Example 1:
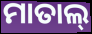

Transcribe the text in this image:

ମାତାଲ୍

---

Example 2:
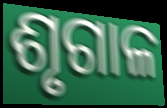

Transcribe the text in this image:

ଶୃଗାଳ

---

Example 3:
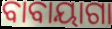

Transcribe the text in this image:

ବାବାୟାଗା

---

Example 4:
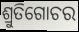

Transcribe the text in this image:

ଶ୍ରୁତିଗୋଚର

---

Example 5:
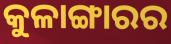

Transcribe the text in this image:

କୁଳାଙ୍ଗାରର